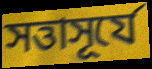
সত্তাসূর্যে